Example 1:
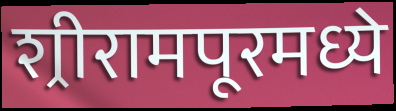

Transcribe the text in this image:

श्रीरामपूरमध्ये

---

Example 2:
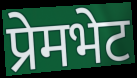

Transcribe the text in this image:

प्रेमभेट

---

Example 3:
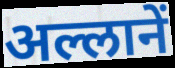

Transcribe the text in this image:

अल्लानें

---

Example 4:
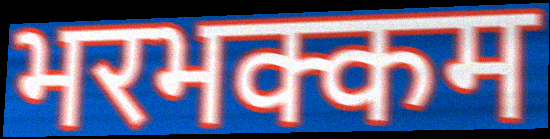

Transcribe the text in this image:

भरभक्कम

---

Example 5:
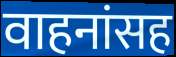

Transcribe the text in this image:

वाहनांसह